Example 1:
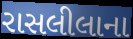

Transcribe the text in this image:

રાસલીલાના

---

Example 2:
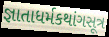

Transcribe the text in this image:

જ્ઞાતાધર્મકથાંગસૂત્ર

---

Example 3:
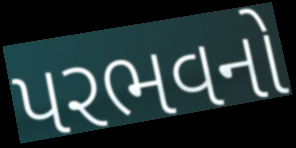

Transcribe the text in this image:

પરભવનો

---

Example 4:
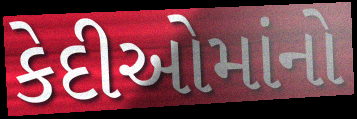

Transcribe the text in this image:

કેદીઓમાંનો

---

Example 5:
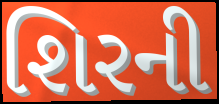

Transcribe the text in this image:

શિરની